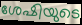
ശേഷിയുടെ